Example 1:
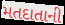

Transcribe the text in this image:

મતદાતાની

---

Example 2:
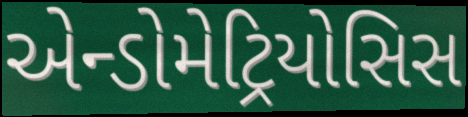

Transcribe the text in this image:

એન્ડોમેટ્રિયોસિસ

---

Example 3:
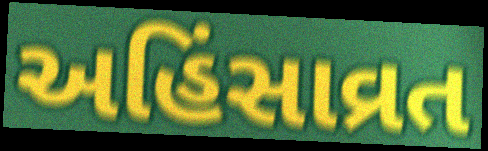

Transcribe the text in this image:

અહિંસાવ્રત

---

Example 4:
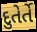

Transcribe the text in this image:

દુતેર્તે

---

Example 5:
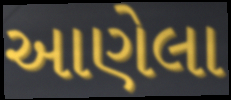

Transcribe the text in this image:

આણેલા